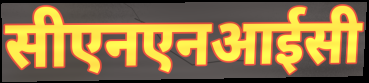
सीएनएनआईसी